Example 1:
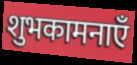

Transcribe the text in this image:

शुभकामनाएँ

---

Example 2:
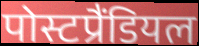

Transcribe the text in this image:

पोस्टप्रैंडियल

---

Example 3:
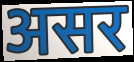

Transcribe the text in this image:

असर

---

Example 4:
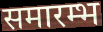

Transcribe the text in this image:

समारम्भ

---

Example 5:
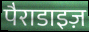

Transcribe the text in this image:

पैराडाइज़